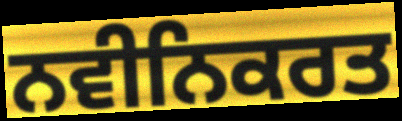
ਨਵੀਨਿਕਰਤ